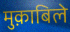
मुक़ाबिले